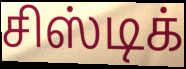
சிஸ்டிக்